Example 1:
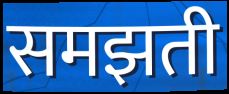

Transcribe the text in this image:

समझती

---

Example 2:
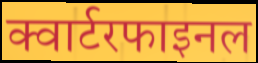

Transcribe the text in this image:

क्वार्टरफाइनल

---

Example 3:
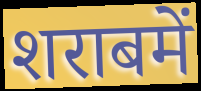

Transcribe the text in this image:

शराबमें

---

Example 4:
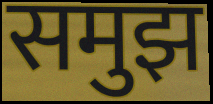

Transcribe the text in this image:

समुझ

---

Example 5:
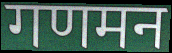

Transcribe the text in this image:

गणमन